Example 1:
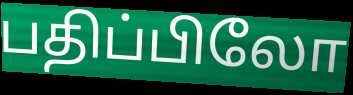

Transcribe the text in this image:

பதிப்பிலோ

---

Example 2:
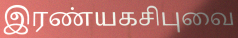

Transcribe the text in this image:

இரண்யகசிபுவை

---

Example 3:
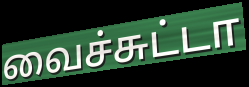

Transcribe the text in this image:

வைச்சுட்டா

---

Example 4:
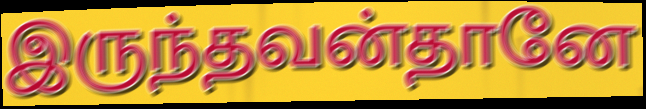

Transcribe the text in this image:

இருந்தவன்தானே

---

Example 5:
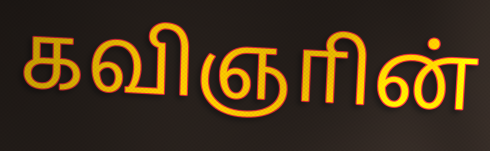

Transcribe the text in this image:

கவிஞரின்